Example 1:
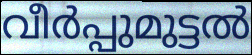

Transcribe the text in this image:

വീർപ്പുമുട്ടൽ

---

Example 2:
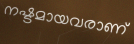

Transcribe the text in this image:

നഷ്ടമായവരാണ്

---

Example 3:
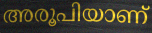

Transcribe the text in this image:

അരൂപിയാണ്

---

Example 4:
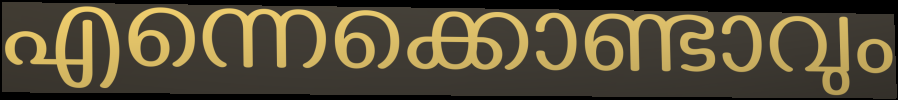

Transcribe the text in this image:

എന്നെക്കൊണ്ടാവും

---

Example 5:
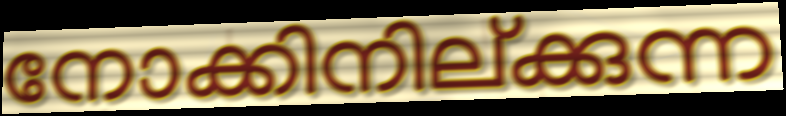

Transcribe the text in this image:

നോക്കിനില്ക്കുന്ന